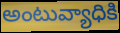
అంటువ్యాధికి